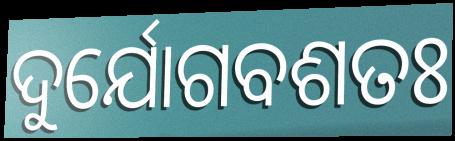
ଦୁର୍ଯୋଗବଶତଃ